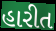
હારીત